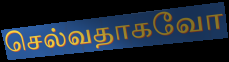
செல்வதாகவோ